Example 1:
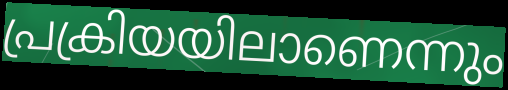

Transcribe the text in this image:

പ്രക്രിയയിലാണെന്നും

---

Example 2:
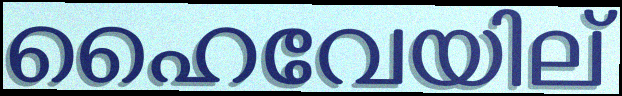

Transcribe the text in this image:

ഹൈവേയില്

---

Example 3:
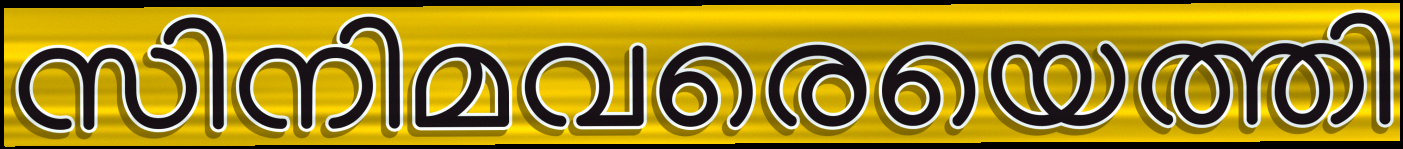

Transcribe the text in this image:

സിനിമവരെയെത്തി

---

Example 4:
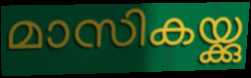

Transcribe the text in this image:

മാസികയ്ക്കു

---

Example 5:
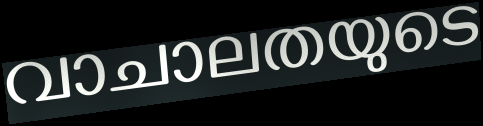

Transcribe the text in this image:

വാചാലതയുടെ